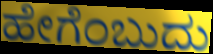
ಹೇಗೆಂಬುದು